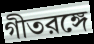
গীতরঙ্গে